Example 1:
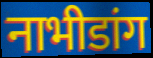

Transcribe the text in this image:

नाभीडांग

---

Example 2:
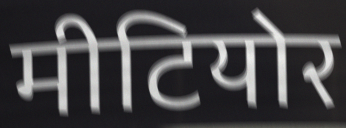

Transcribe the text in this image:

मीटियोर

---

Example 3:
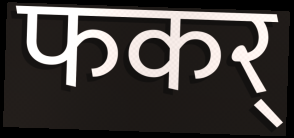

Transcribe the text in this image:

फकर्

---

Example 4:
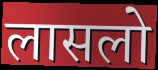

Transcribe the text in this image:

लासलो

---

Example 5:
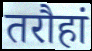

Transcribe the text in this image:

तरौहां